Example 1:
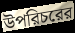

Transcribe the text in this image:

উপরিচরের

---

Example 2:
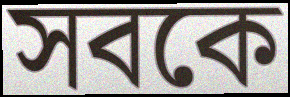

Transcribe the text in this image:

সবকে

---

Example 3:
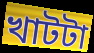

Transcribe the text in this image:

খাটটা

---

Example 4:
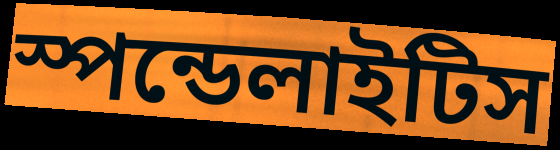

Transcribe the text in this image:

স্পন্ডেলাইটিস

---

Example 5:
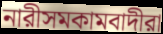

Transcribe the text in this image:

নারীসমকামবাদীরা